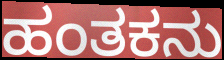
ಹಂತಕನು